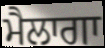
ਮੈਲਾਗਾ